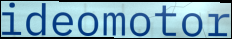
ideomotor